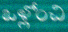
ఒళ్లోంచి